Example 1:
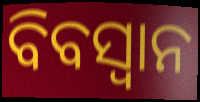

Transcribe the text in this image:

ବିବସ୍ୱାନ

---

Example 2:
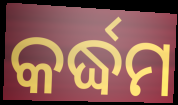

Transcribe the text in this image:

କର୍ଦ୍ଧମ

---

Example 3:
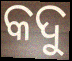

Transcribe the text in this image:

କଦୁ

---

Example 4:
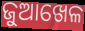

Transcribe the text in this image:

ଜୁଆଖେଳ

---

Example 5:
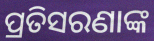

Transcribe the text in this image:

ପ୍ରତିସରଣାଙ୍କ